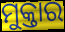
ମୁକ୍ତାର